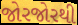
જોરજોરથી